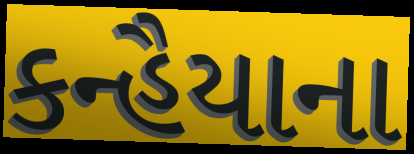
કન્હૈયાના